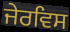
ਜੇਰਵਿਸ